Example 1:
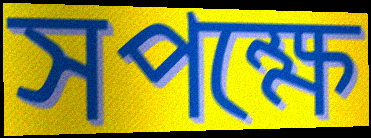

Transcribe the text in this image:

সপক্ষে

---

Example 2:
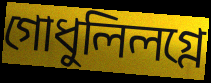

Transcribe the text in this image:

গোধুলিলগ্নে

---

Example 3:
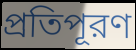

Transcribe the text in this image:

প্রতিপূরণ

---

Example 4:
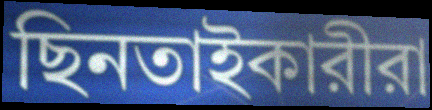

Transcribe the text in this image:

ছিনতাইকারীরা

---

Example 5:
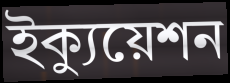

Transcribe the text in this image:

ইক্যুয়েশন